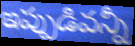
ఇప్పుడివన్నీ